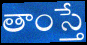
తాంస్తే